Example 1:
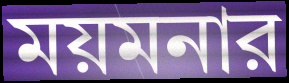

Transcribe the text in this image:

ময়মনার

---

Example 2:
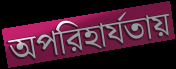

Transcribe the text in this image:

অপরিহার্যতায়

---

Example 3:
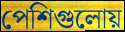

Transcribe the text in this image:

পেশিগুলোয়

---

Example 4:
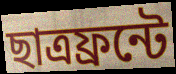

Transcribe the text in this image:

ছাত্রফ্রন্টে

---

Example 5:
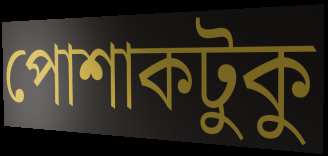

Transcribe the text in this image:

পোশাকটুকু